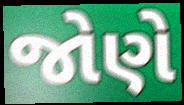
જોણે